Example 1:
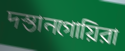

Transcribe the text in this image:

দস্তানগোয়িরা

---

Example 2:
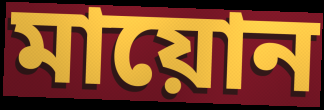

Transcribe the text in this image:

মায়োন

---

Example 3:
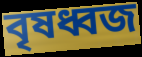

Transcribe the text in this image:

বৃষধ্বজ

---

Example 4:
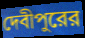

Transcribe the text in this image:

দেবীপুরের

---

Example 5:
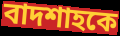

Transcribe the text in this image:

বাদশাহকে